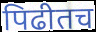
पिढीतच